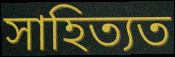
সাহিত্যত